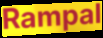
Rampal